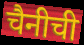
चैनीची